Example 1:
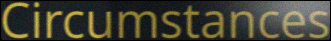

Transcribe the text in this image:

Circumstances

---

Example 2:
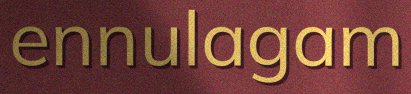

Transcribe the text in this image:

ennulagam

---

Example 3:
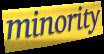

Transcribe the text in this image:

minority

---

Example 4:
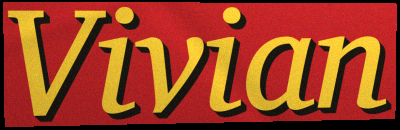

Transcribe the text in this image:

Vivian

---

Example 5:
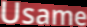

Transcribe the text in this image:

Usame